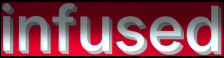
infused